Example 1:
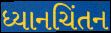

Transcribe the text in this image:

ધ્યાનચિંતન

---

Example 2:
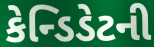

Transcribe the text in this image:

કેન્ડિડેટની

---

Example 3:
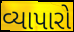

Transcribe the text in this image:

વ્યાપારો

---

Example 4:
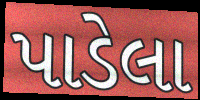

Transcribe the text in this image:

પાડેલા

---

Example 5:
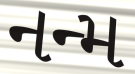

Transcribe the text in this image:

નન્મ